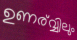
ഉണര്വ്വിലും